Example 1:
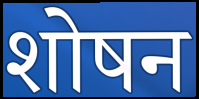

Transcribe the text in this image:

शोषन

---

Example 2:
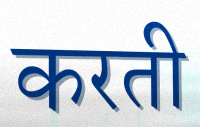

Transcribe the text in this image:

करती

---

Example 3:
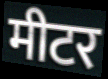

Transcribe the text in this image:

मीटर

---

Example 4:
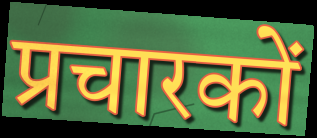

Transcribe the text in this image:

प्रचारकों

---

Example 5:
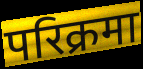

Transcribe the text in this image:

परिक्रमा